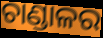
ଚାଣ୍ଡାଳର